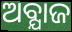
ଅବ୍ଯାଜ